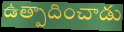
ఉత్పాదించాడు